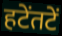
हटेंतटें